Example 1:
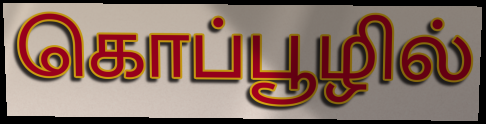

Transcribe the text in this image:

கொப்பூழில்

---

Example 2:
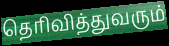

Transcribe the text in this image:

தெரிவித்துவரும்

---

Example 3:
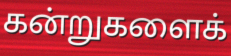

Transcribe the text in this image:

கன்றுகளைக்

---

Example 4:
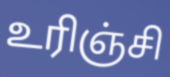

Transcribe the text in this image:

உரிஞ்சி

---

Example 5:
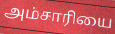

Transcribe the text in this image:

அம்சாரியை